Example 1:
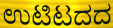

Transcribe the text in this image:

ಉಟಿಟದದ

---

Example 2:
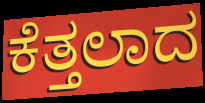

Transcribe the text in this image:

ಕೆತ್ತಲಾದ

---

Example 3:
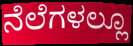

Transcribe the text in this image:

ನೆಲೆಗಳಲ್ಲೂ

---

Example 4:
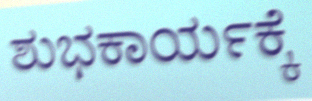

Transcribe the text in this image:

ಶುಭಕಾರ್ಯಕ್ಕೆ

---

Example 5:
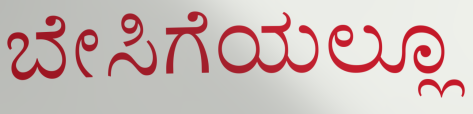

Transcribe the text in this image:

ಬೇಸಿಗೆಯಲ್ಲೂ